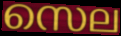
സെല